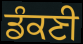
ਡੰਕਣੀ